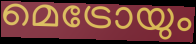
മെട്രോയും